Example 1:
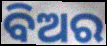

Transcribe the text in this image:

ବିଅର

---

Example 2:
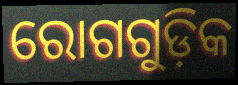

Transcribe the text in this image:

ରୋଗଗୁଡ଼ିକ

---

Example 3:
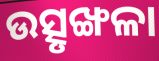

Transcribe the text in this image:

ଉତ୍ସୃଙ୍ଖଳା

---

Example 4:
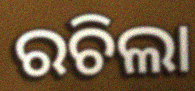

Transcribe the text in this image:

ରଚିଲା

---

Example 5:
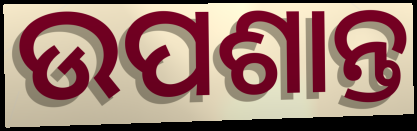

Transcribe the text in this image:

ଉପଶାନ୍ତ